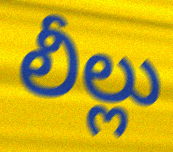
లీల్లు